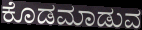
ಕೊಡಮಾಡುವ